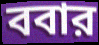
ববার